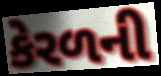
કેરળની